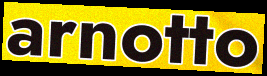
arnotto